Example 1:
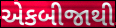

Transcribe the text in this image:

એકબીજાથી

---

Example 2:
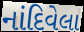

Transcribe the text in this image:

નાંદિવેલા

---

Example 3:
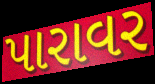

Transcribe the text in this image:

પારાવર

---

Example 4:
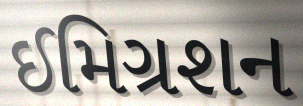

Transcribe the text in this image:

ઈમિગ્રશન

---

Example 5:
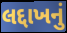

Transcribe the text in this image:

લદ્દાખનું